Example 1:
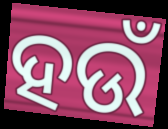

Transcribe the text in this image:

ହଉଁ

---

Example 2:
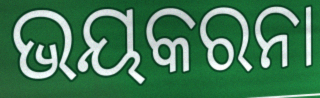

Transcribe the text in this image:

ଭୟକରନା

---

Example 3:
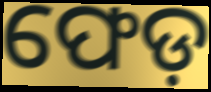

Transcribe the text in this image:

ଫେଡ଼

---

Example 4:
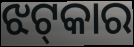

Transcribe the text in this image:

ଝଟ୍‍କାର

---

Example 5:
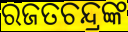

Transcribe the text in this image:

ରଜତଚନ୍ଦ୍ରଙ୍କ